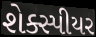
શેક્સ્પીયર